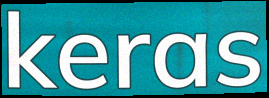
keras